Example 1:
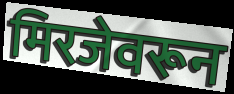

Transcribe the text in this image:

मिरजेवरून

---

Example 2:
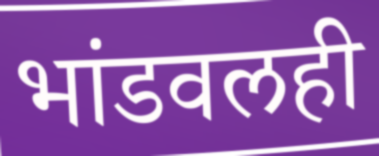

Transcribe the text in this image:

भांडवलही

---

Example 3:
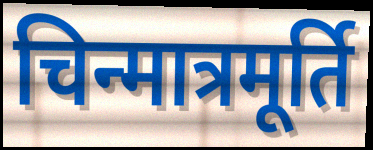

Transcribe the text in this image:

चिन्मात्रमूर्ति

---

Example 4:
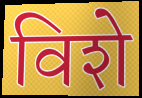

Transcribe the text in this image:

विशे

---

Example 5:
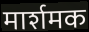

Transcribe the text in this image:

मार्शमक